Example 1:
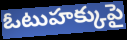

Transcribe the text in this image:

ఓటుహక్కుపై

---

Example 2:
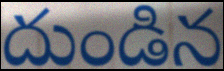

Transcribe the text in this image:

దుండిన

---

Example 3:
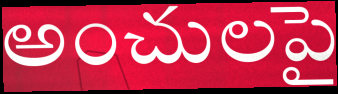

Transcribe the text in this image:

అంచులపై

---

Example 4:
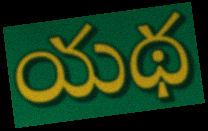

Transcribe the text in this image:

యథ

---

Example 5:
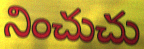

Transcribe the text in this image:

నించుచు